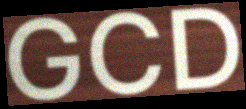
GCD